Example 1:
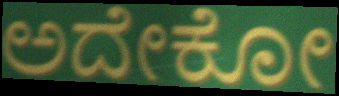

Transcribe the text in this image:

ಅದೇಕೋ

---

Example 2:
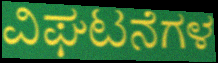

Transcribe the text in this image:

ವಿಘಟನೆಗಳ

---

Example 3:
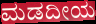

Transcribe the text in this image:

ಮಡದೀಯ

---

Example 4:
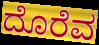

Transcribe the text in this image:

ದೊರೆವ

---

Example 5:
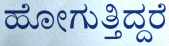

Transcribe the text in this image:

ಹೋಗುತ್ತಿದ್ದರೆ